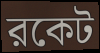
রকেট